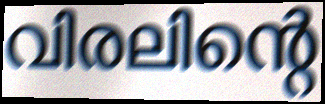
വിരലിന്റെ